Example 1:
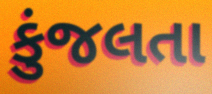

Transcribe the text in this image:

કુંજલતા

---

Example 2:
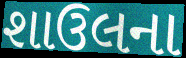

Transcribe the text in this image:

શાઉલના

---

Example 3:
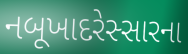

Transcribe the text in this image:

નબૂખાદરેસ્સારના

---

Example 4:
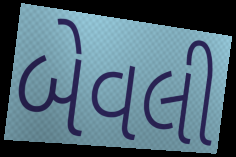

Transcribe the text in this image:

બેવલી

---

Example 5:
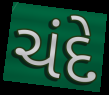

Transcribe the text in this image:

ચંદે